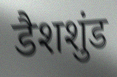
डैशशुंड